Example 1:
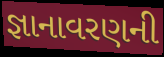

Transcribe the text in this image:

જ્ઞાનાવરણની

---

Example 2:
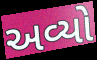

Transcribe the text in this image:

અવ્યો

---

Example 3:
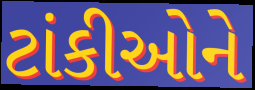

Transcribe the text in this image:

ટાંકીઓને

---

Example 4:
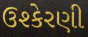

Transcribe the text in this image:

ઉશ્કેરણી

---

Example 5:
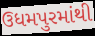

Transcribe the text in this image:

ઉધમપુરમાંથી